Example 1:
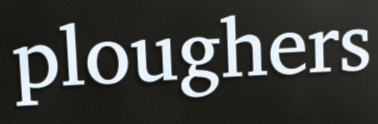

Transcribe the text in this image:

ploughers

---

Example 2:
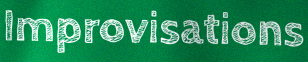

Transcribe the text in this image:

Improvisations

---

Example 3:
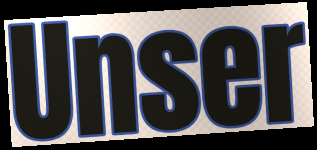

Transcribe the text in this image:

Unser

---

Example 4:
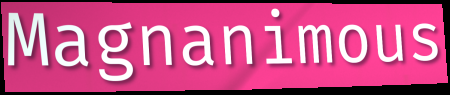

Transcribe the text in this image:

Magnanimous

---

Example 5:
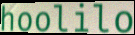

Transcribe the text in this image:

hoolilo